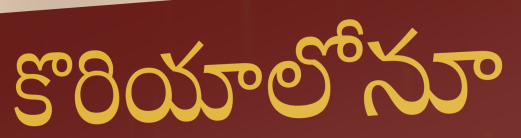
కొరియాలోనూ